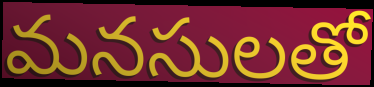
మనసులతో